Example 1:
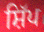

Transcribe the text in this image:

ਸ਼ਿੱਪ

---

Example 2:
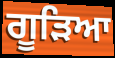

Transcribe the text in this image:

ਗੂੜਿਆ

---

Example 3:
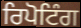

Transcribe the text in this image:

ਰਿਪੋਟਿੰਗ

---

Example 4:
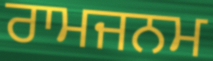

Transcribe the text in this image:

ਰਾਮਜਨਮ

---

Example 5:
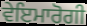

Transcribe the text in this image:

ਵੇਇਮਾਰੋਗੀ